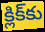
క్లిక్‌కు